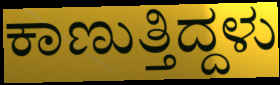
ಕಾಣುತ್ತಿದ್ದಳು